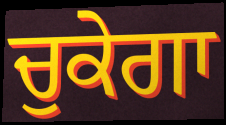
ਚੁਕੇਗਾ